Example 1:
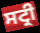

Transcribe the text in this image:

ਸਟ੍ਰੀ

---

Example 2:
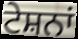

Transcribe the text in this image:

ਟੇਸ਼ਨਾਂ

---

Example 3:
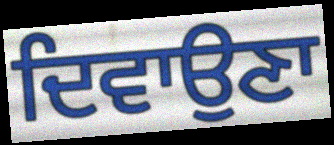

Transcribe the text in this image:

ਦਿਵਾਉਣਾ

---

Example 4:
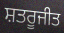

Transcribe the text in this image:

ਸ਼ਤਰੂਜੀਤ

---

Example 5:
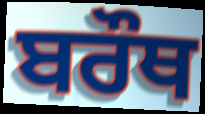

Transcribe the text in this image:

ਬਰੌਥ